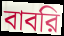
বাবরি